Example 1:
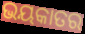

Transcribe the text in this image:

ଭୟକାତର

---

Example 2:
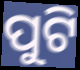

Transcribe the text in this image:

ପୁଟି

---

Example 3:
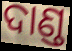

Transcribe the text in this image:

ଦାଣ୍ଡ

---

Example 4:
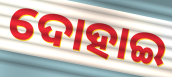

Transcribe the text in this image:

ଦୋହାଇ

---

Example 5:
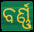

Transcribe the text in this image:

ବର୍ଣ୍ଣ୍